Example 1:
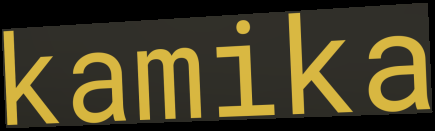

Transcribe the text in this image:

kamika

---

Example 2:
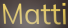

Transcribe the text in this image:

Matti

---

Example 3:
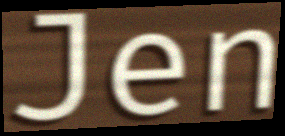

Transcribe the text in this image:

Jen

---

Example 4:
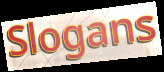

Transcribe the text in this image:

Slogans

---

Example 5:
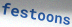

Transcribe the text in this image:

festoons